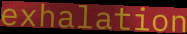
exhalation